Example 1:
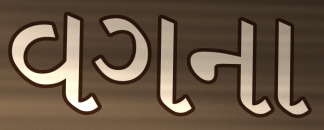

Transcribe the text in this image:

વગના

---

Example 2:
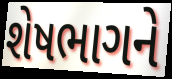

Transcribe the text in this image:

શેષભાગને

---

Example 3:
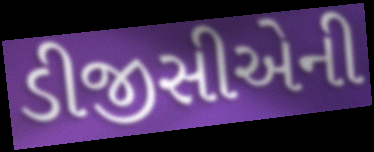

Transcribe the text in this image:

ડીજીસીએની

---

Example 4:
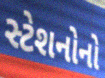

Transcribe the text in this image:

સ્ટેશનોનો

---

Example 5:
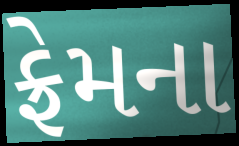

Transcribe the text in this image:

ફ્રેમના